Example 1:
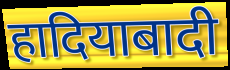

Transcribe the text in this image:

हादियाबादी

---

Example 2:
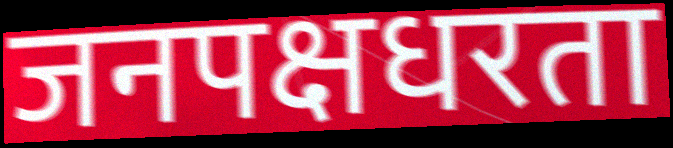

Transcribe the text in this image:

जनपक्षधरता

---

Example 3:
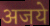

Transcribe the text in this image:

अजये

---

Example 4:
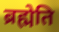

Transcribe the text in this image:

ब्रह्मेति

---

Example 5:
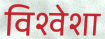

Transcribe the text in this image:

विश्वेशा